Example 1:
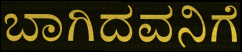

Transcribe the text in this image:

ಬಾಗಿದವನಿಗೆ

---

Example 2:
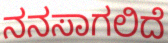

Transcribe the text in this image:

ನನಸಾಗಲಿದೆ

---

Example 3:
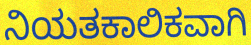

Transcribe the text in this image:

ನಿಯತಕಾಲಿಕವಾಗಿ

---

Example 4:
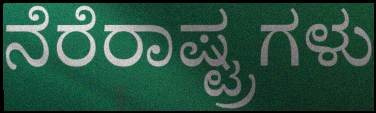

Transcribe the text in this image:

ನೆರೆರಾಷ್ಟ್ರಗಳು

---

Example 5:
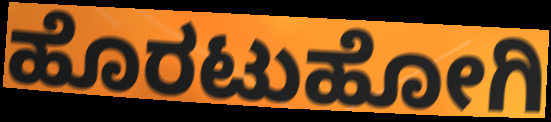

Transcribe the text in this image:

ಹೊರಟುಹೋಗಿ